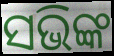
ସଭିଙ୍କ